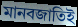
মানবজাতিই